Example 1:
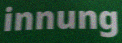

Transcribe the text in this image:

innung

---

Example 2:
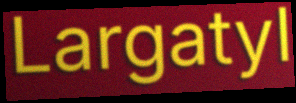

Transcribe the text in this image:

Largatyl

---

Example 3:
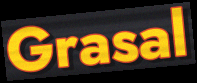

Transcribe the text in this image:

Grasal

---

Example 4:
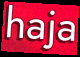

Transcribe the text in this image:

haja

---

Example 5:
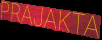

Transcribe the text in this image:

PRAJAKTA